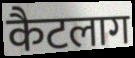
कैटलाग